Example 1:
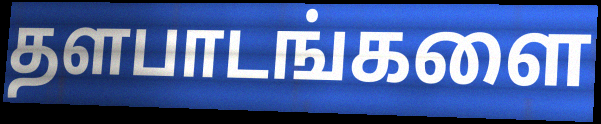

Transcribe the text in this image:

தளபாடங்களை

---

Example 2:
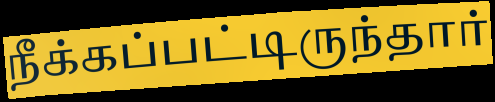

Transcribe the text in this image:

நீக்கப்பட்டிருந்தார்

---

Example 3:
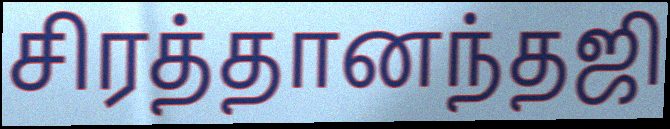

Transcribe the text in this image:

சிரத்தானந்தஜி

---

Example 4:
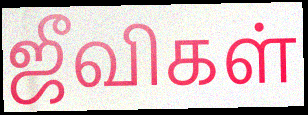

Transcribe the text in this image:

ஜீவிகள்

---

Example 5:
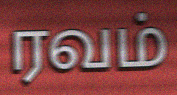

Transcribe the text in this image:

ரவம்